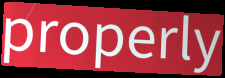
properly